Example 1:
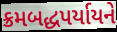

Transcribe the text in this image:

ક્રમબદ્ધપર્યાયને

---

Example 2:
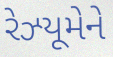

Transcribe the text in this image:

રેઝ્યૂમેને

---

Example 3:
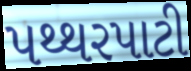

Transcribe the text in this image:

પથ્થરપાટી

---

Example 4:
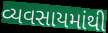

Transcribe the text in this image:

વ્યવસાયમાંથી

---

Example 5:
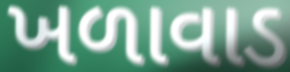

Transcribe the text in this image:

ખળાવાડ